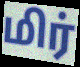
மிர்